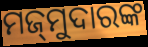
ମଜ୍‍ମୁଦାରଙ୍କ